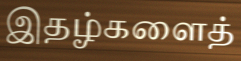
இதழ்களைத்